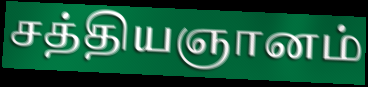
சத்தியஞானம்